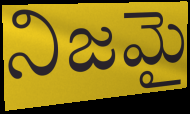
నిజమై